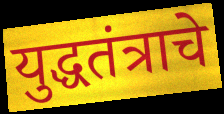
युद्धतंत्राचे